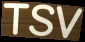
TSV